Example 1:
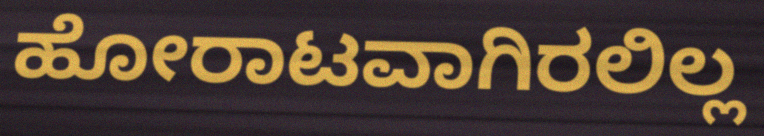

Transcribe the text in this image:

ಹೋರಾಟವಾಗಿರಲಿಲ್ಲ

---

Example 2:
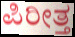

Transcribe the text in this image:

ಪಿರೀತ್ತ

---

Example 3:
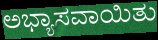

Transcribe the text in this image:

ಅಭ್ಯಾಸವಾಯಿತು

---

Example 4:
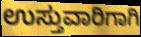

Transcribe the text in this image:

ಉಸ್ತುವಾರಿಗಾಗಿ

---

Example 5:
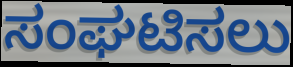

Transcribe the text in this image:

ಸಂಘಟಿಸಲು